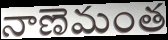
నాణెమంత